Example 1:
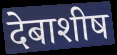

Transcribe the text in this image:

देबाशीष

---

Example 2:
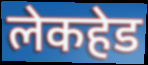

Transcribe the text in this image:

लेकहेड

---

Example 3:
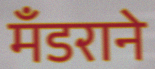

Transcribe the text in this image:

मँडराने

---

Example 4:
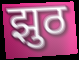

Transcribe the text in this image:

झुठ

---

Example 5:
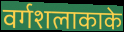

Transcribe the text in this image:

वर्गशलाकाके